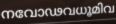
നവോഢവധൂമിവ